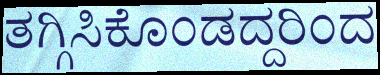
ತಗ್ಗಿಸಿಕೊಂಡದ್ದರಿಂದ